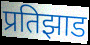
प्रतिझाड